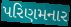
પરિણમનાર